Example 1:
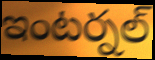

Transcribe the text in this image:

ఇంటర్నల్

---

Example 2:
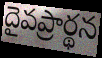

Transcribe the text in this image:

దైవప్రార్థన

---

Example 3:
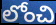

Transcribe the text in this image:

లోంచి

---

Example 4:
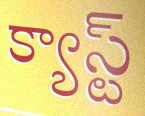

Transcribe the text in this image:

క్యాస్ట్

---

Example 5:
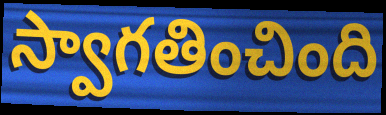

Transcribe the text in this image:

స్వాగతించింది